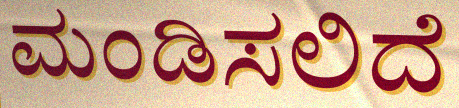
ಮಂಡಿಸಲಿದೆ